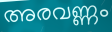
അരവണ്ണം